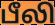
பீலி